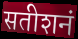
सतीशनं